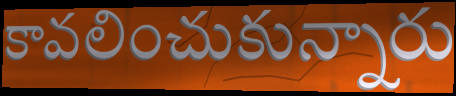
కావలించుకున్నారు